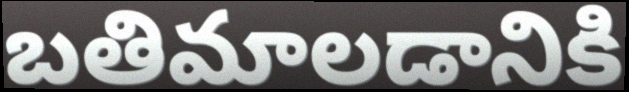
బతిమాలడానికి